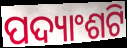
ପଦ୍ୟାଂଶଟି